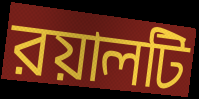
রয়ালটি